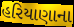
હરિયાણાના